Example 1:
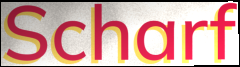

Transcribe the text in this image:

Scharf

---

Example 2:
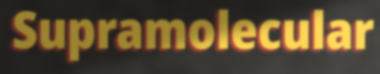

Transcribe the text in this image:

Supramolecular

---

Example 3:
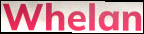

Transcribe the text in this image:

Whelan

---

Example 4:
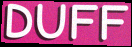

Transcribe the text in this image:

DUFF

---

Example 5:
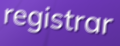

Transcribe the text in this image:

registrar